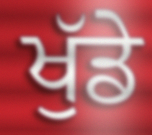
ਖੁੱਡੇ